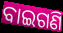
ବାଇଗଣି